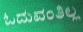
ಓದುವಂತಿಲ್ಲ